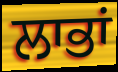
ਲਾਭਾਂ